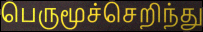
பெருமூச்செறிந்து